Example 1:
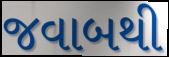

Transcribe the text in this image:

જવાબથી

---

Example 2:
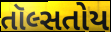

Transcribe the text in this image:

તૉલ્સતોય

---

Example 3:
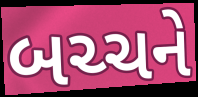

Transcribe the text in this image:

બચ્ચને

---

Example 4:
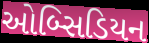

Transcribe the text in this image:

ઓબ્સિડિયન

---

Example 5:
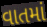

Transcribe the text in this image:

વાતમાં